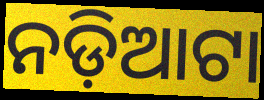
ନଡ଼ିଆଟା